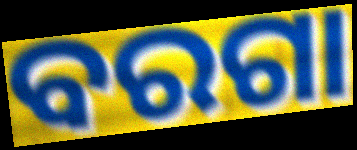
ବରଗା